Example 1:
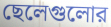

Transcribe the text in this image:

ছেলেগুলোর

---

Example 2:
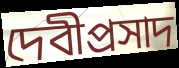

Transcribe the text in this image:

দেবীপ্রসাদ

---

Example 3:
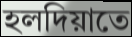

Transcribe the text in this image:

হলদিয়াতে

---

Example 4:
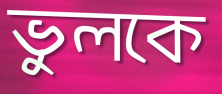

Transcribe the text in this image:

ভুলকে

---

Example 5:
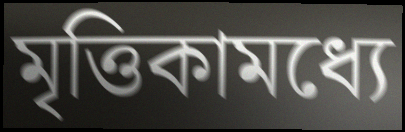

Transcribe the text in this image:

মৃত্তিকামধ্যে